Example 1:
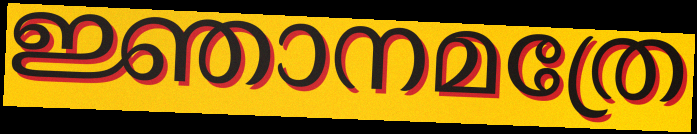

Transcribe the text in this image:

ജ്ഞാനമത്രേ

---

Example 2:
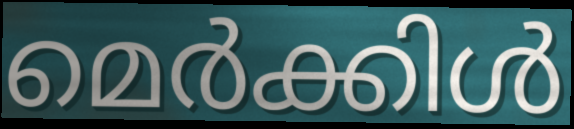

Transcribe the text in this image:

മെർക്കിൾ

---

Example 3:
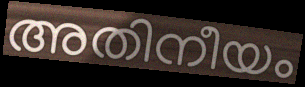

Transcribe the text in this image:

അതിനീയം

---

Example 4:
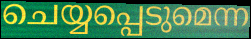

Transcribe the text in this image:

ചെയ്യപ്പെടുമെന്ന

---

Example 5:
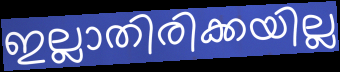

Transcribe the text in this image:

ഇല്ലാതിരിക്കയില്ല